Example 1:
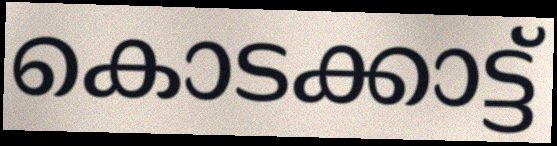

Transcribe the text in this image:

കൊടക്കാട്ട്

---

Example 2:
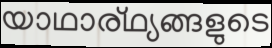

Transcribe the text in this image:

യാഥാര്ഥ്യങ്ങളുടെ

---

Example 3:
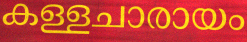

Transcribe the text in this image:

കള്ളചാരായം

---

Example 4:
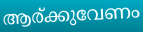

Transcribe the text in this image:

ആര്ക്കുവേണം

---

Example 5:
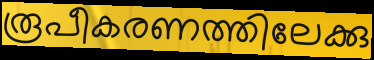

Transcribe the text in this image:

രൂപീകരണത്തിലേക്കു